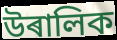
উৰালিক